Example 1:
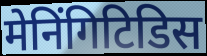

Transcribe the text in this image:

मेनिंगिटिडिस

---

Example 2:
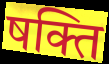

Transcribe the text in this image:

षक्ति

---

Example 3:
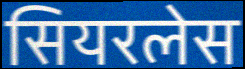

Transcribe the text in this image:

सियरलेस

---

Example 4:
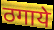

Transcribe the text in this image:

ठगाये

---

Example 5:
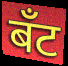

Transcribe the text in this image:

बँट